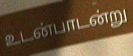
உடன்பாடன்று